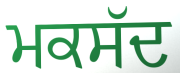
ਮਕਸੱਦ